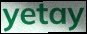
yetay